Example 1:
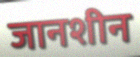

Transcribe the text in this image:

जानशीन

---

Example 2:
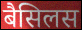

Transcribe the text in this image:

बैसिलस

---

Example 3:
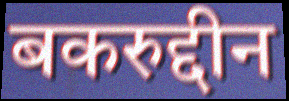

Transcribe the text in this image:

बकरुद्दीन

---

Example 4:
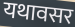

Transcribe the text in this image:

यथावसर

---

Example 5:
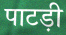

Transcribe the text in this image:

पाटड़ी